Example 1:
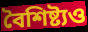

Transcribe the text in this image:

বৈশিষ্ট্যও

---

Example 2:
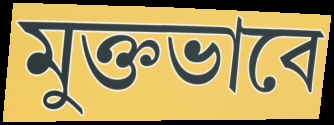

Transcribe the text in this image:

মুক্তভাবে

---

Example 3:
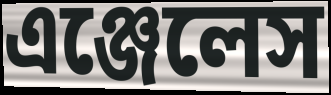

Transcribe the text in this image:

এঞ্জেলেস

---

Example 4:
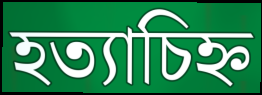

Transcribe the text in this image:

হত্যাচিহ্ন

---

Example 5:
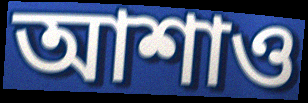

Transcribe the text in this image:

আশাও